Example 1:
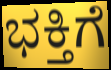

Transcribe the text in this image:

ಭಕ್ತಿಗೆ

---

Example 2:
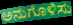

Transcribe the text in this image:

ಅನುಗೊಳಿಸು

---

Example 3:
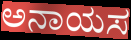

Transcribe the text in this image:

ಅನಾಯಸ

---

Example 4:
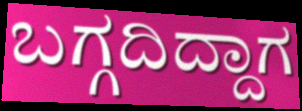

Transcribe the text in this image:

ಬಗ್ಗದಿದ್ದಾಗ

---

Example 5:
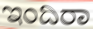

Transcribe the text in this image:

ಇಂದಿರಾ